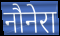
नौनेरा